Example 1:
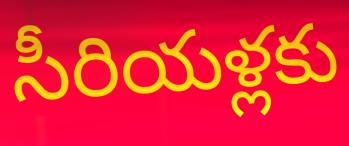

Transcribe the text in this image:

సీరియళ్లకు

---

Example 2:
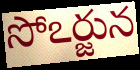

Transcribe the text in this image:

సోఽర్జున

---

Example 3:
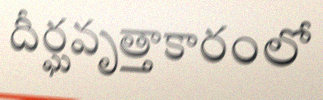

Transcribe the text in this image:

దీర్ఘవృత్తాకారంలో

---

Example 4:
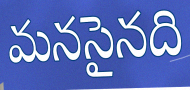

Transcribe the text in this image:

మనసైనది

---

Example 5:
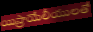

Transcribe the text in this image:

యిస్రాయేలీయులతో